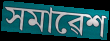
সমাৱেশ